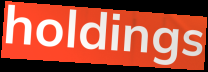
holdings